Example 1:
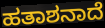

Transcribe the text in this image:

ಹತಾಶನಾದೆ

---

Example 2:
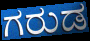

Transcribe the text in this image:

ಗರುಡ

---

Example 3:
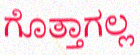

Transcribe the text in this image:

ಗೊತ್ತಾಗಲ್ಲ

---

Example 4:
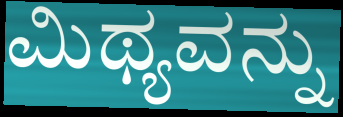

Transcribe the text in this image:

ಮಿಥ್ಯವನ್ನು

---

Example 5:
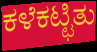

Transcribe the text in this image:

ಕಳೆಕಟ್ಟಿತು